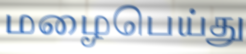
மழைபெய்து